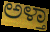
ಅಳ್ತಾ